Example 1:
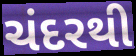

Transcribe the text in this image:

ચંદરથી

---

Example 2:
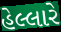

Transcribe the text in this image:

હેલ્લારે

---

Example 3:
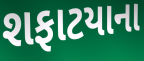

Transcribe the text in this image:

શફાટયાના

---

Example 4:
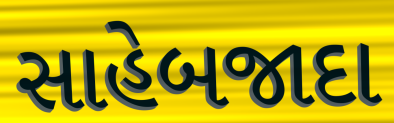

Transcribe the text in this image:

સાહેબજાદા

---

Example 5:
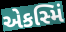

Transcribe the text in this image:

એકસ્મિં